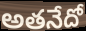
అతనేదో